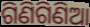
ଗିଣିଗିଣିଆ